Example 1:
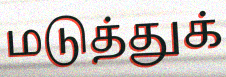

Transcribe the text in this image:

மடுத்துக்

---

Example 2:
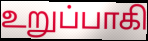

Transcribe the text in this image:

உறுப்பாகி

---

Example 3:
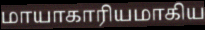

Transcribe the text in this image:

மாயாகாரியமாகிய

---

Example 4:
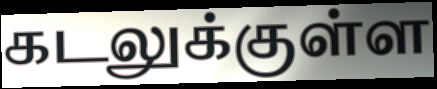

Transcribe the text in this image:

கடலுக்குள்ள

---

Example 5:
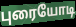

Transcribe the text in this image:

புரையோடி